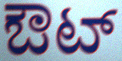
ಔಟ್